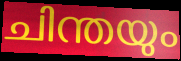
ചിന്തയും